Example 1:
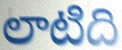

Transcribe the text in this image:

లాటిది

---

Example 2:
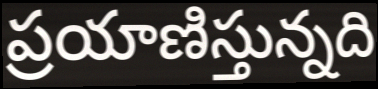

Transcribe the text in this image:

ప్రయాణిస్తున్నది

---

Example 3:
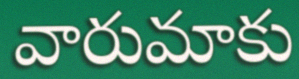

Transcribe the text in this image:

వారుమాకు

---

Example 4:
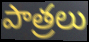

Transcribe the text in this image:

పాత్రలు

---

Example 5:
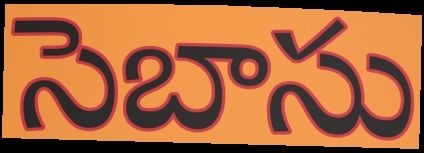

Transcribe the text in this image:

సెబాసు